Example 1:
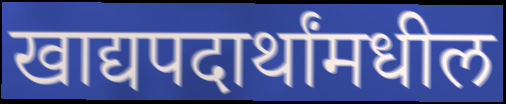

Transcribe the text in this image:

खाद्यपदार्थांमधील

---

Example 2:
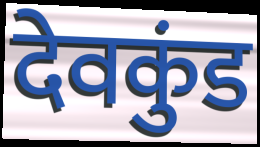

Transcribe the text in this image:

देवकुंड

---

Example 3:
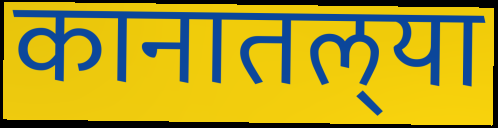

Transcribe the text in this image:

कानातल्या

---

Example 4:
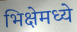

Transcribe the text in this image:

भिक्षेमध्ये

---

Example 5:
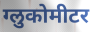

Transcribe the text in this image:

ग्लुकोमीटर